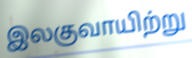
இலகுவாயிற்று